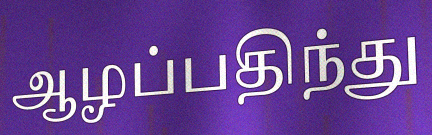
ஆழப்பதிந்து